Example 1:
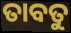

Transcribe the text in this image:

ତାବତୁ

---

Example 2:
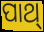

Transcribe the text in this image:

ପାଥ୍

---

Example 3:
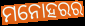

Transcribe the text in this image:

ମନୋହରର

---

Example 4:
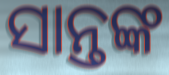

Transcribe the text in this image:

ସାନ୍ତଙ୍କ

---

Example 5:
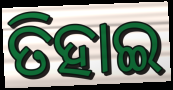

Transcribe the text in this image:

ତିହାଇ